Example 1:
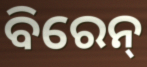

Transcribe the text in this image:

ବିରେନ୍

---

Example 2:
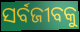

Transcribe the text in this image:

ସର୍ବଜୀବକୁ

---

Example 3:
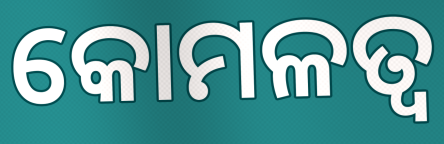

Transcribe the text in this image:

କୋମଳତ୍ୱ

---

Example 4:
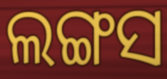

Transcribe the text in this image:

ଲଙ୍ଗସ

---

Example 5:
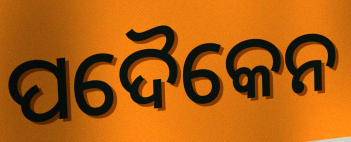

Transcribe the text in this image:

ପଦୈକେନ